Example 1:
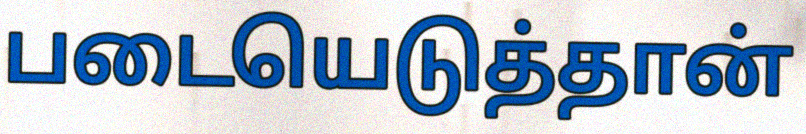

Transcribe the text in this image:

படையெடுத்தான்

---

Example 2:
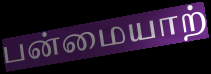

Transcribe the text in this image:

பன்மையாற்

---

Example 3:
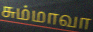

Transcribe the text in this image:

சும்மாவா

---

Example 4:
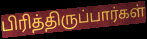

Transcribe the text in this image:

பிரித்திருப்பார்கள்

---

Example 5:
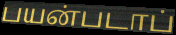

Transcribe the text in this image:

பயன்படாப்